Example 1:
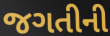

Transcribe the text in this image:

જગતીની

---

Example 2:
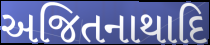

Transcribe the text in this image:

અજિતનાથાદિ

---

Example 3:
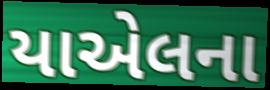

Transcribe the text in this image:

યાએલના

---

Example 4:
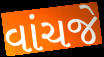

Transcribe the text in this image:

વાંચજે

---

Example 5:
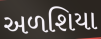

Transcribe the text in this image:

અળશિયા